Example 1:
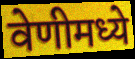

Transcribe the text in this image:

वेणीमध्ये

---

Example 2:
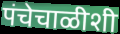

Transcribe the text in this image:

पंचेचाळीशी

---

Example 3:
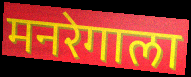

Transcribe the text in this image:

मनरेगाला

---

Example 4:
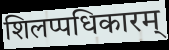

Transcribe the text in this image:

शिलप्पधिकारम्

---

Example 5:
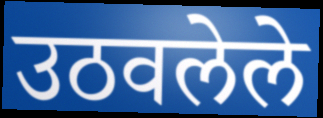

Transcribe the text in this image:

उठवलेले